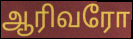
ஆரிவரோ